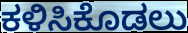
ಕಳಿಸಿಕೊಡಲು